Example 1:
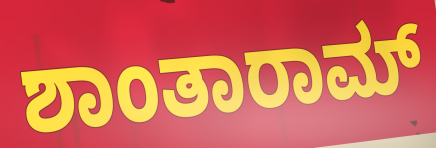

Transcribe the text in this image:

ಶಾಂತಾರಾಮ್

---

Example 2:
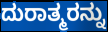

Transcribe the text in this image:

ದುರಾತ್ಮರನ್ನು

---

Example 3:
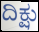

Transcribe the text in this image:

ದಿಕ್ಷು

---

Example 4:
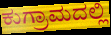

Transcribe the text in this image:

ಕುಗ್ರಾಮದಲ್ಲಿ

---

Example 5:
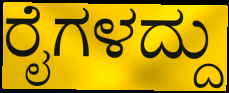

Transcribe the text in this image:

ರೈಗಳದ್ದು